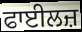
ਫਾਈਲਜ਼